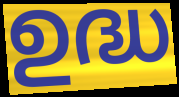
ഉദ്ധ